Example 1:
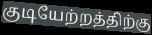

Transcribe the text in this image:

குடியேற்றத்திற்கு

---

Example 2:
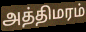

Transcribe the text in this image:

அத்திமரம்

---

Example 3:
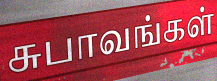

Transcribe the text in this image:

சுபாவங்கள்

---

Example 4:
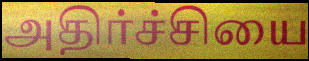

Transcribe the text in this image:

அதிர்ச்சியை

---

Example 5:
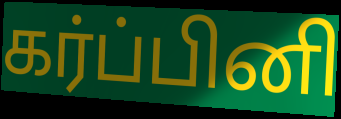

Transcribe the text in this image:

கர்ப்பினி